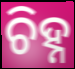
ଚିହ୍ନ